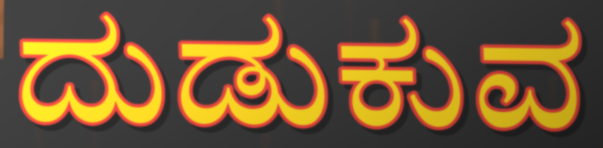
ದುಡುಕುವ